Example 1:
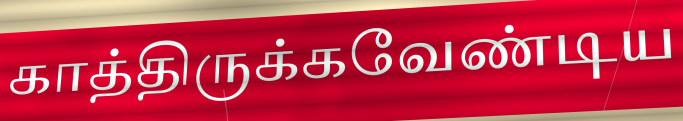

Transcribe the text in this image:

காத்திருக்கவேண்டிய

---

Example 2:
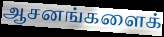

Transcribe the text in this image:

ஆசனங்களைக்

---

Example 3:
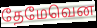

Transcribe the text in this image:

தேமேவென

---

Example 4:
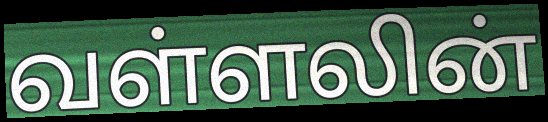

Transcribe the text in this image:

வள்ளலின்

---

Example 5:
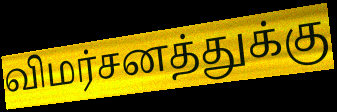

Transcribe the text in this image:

விமர்சனத்துக்கு